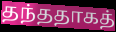
தந்ததாகத்